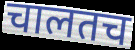
चालतच